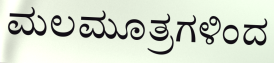
ಮಲಮೂತ್ರಗಳಿಂದ